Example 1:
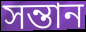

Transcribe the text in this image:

সন্তান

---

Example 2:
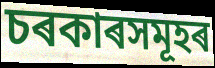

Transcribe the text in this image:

চৰকাৰসমূহৰ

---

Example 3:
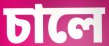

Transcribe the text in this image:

চালে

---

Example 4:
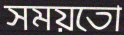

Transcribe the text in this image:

সময়তো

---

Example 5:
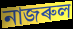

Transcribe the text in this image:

নাজৰুল